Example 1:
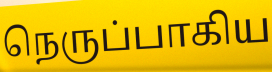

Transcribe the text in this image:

நெருப்பாகிய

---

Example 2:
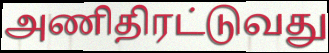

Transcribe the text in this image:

அணிதிரட்டுவது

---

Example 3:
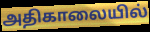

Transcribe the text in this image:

அதிகாலையில்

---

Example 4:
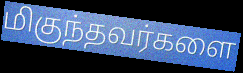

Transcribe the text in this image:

மிகுந்தவர்களை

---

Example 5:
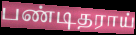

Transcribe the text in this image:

பண்டிதராய்